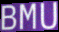
BMU